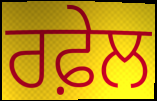
ਰਫ਼ੇਲ